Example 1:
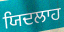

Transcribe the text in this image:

ਯਿਦਲਾਹ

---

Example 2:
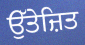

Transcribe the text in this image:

ਉੱਤੇਜ਼ਿਤ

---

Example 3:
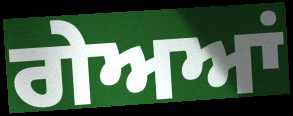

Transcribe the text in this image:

ਗੇਅਆਂ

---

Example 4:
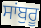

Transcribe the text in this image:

ਸਾਂਬੁਰੂ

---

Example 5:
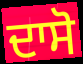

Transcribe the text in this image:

ਦਾਸੋ